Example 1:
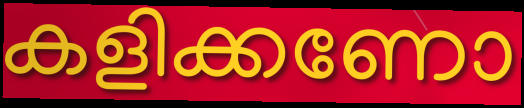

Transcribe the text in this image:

കളിക്കണോ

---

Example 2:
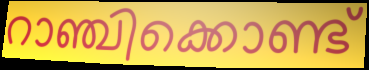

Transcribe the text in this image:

റാഞ്ചിക്കൊണ്ട്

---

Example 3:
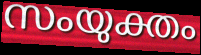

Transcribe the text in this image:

സംയുക്തം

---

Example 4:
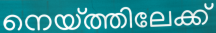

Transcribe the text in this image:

നെയ്ത്തിലേക്ക്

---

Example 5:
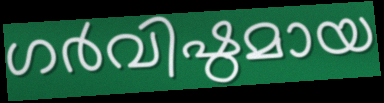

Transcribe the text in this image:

ഗർവിഷ്ഠമായ